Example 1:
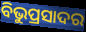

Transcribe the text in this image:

ବିଭୁପ୍ରସାଦର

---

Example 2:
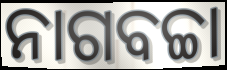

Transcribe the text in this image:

ନାଗବଚ୍ଚା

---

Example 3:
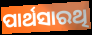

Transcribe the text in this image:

ପାର୍ଥସାରଥି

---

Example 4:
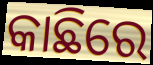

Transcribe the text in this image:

କାଛିରେ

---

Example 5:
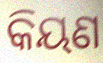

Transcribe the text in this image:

କିୟଣ